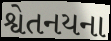
શ્વેતનયના